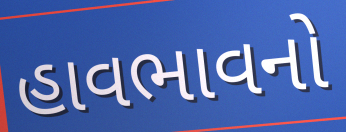
હાવભાવનો